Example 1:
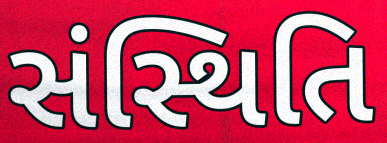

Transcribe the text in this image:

સંસ્થિતિ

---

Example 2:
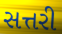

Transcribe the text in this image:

સત્તરી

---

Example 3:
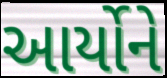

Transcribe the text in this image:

આર્યોને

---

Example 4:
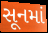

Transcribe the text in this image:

સૂનમાં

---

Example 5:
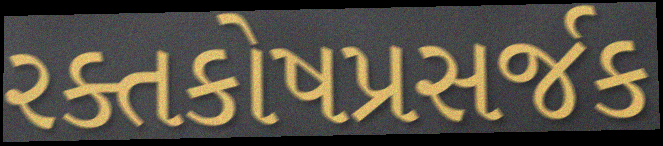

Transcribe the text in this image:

રક્તકોષપ્રસર્જક